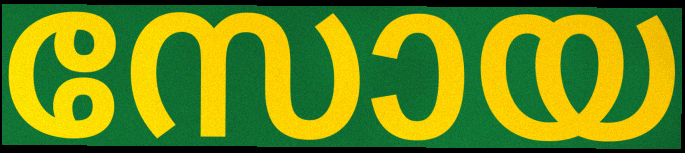
സോയ